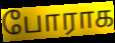
போராக